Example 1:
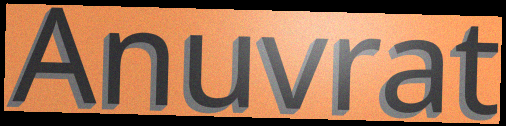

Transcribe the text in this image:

Anuvrat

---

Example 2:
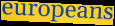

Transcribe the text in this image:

europeans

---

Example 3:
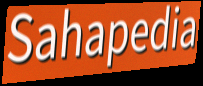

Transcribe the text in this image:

Sahapedia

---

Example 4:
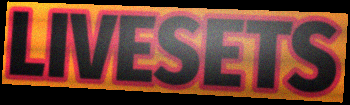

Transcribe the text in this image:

LIVESETS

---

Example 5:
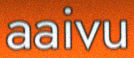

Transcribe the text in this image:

aaivu